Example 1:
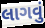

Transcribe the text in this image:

લાગવું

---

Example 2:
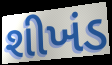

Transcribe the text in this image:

શીખંડ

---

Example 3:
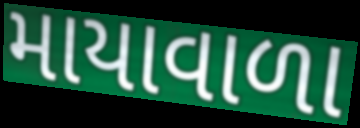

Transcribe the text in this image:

માયાવાળા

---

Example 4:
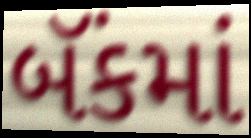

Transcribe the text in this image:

બૅંકમાં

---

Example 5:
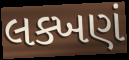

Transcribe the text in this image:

લક્ખણં